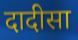
दादीसा